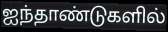
ஐந்தாண்டுகளில்